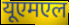
यूएमएल